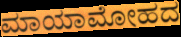
ಮಾಯಾಮೋಹದ